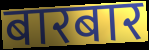
बारबार